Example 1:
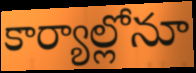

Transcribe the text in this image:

కార్యాల్లోనూ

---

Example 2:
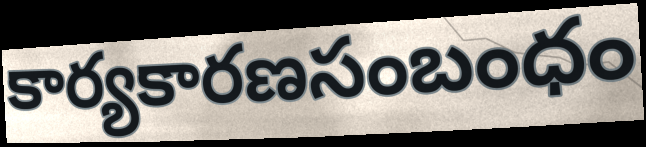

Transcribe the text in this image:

కార్యకారణసంబంధం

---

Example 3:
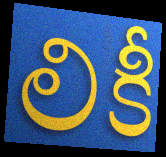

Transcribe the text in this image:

లికీ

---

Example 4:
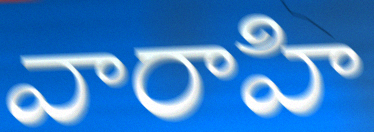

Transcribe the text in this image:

వారాహి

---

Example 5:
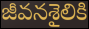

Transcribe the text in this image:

జీవనశైలికి